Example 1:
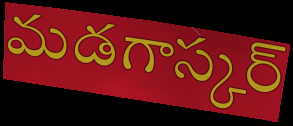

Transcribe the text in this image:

మడగాస్కర్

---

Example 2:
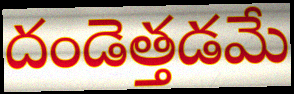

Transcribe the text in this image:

దండెత్తడమే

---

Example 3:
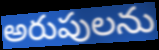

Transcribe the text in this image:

అరుపులను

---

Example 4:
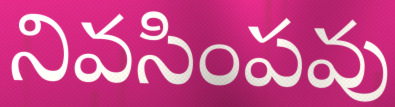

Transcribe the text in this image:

నివసింపవు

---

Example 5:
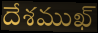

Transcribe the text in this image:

దేశముఖ్